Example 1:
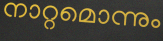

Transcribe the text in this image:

നാറ്റമൊന്നും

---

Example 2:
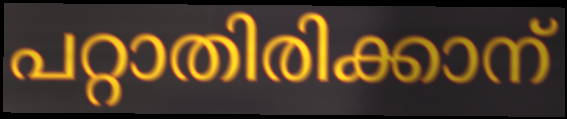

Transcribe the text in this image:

പറ്റാതിരിക്കാന്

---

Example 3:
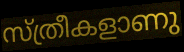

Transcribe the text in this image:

സ്ത്രീകളാണു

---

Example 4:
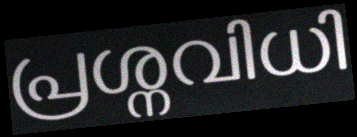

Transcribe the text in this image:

പ്രശ്നവിധി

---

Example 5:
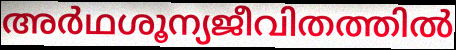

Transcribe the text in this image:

അർഥശൂന്യജീവിതത്തിൽ